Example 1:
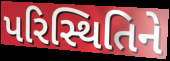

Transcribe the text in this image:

પરિસ્થિતિને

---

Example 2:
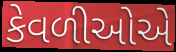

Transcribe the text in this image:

કેવળીઓએ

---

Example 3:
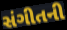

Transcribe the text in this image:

સંગીતની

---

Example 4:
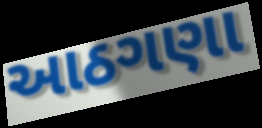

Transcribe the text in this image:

આઠગણા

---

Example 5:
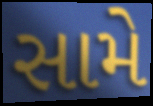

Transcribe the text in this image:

સામે